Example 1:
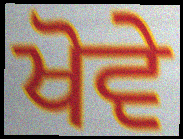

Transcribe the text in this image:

ਖੋਵੇ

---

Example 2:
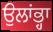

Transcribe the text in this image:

ਉਲਾਂਭ੍ਹਾ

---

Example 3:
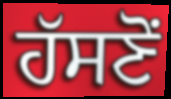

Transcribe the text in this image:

ਹੱਸਣੋਂ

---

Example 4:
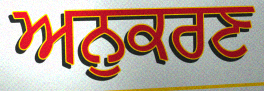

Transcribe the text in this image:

ਅਨੁਕਰਣ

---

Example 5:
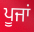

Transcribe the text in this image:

ਪੂਜਾਂ